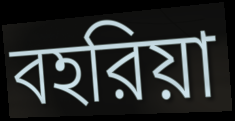
বহরিয়া